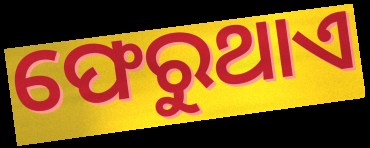
ଫେରୁଥାଏ